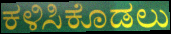
ಕಳಿಸಿಕೊಡಲು